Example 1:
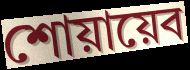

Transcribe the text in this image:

শোয়ায়েব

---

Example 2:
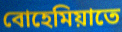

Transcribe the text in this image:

বোহেমিয়াতে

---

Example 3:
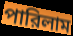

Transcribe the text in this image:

পারিলাম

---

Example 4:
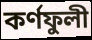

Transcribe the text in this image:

কর্ণফুলী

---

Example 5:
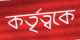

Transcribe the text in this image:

কর্তৃত্বকে